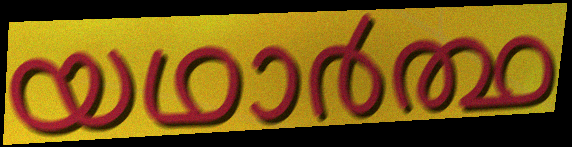
യഥാർത്ഥ